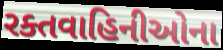
રક્તવાહિનીઓના